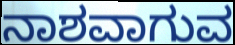
ನಾಶವಾಗುವ